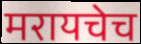
मरायचेच